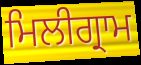
ਮਿਲੀਗ੍ਰਾਮ